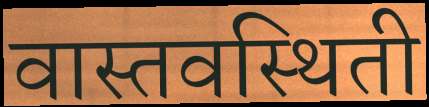
वास्तवस्थिती